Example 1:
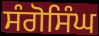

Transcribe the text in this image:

ਸੰਗੋਸਿੰਘ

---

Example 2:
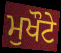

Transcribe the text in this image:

ਮੁਖੌਟੇ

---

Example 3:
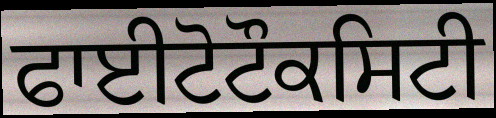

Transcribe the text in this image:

ਫਾਈਟੋਟੌਕਸਿਟੀ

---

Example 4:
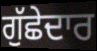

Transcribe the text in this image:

ਗੁੱਛੇਦਾਰ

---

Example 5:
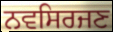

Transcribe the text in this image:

ਨਵਸਿਰਜਣ